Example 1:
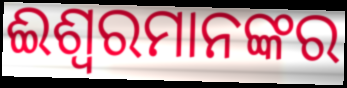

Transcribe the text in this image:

ଈଶ୍ୱରମାନଙ୍କର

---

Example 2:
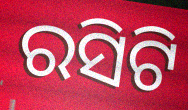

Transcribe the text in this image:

ରସିଟି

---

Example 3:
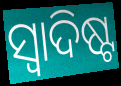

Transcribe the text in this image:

ସ୍ବାଦିଷ୍ଟ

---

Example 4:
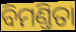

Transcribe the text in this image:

ବିମଣ୍ତିତା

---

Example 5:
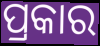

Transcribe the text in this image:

ପ୍ରକାର